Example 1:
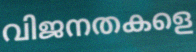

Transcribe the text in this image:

വിജനതകളെ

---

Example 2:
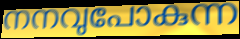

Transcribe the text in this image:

നനവുപോകുന്ന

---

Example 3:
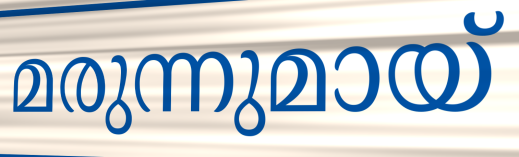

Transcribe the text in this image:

മരുന്നുമായ്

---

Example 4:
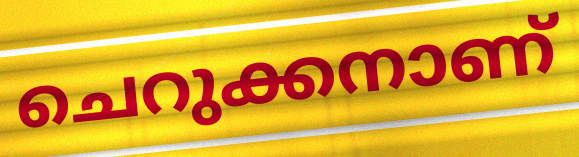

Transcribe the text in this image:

ചെറുക്കനാണ്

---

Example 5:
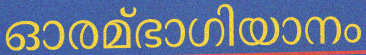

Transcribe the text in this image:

ഓരമ്ഭാഗിയാനം